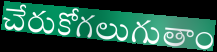
చేరుకోగలుగుతాం